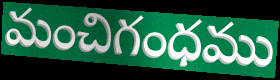
మంచిగంధము